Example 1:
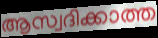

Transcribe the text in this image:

ആസ്വദിക്കാത്ത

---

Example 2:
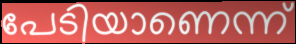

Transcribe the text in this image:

പേടിയാണെന്ന്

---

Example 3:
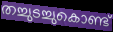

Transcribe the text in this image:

തച്ചുടച്ചുകൊണ്ട്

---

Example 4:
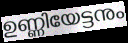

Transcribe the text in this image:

ഉണ്ണിയേട്ടനും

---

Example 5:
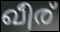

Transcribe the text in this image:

ഖീര്